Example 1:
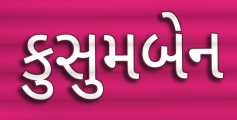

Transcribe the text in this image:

કુસુમબેન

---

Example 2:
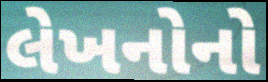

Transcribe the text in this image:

લેખનોનો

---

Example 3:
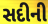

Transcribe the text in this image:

સદીની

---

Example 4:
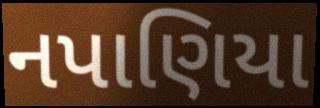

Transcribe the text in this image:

નપાણિયા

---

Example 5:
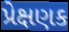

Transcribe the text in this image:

પ્રેક્ષણક